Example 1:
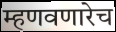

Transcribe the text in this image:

म्हणवणारेच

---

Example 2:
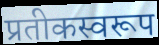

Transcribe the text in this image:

प्रतीकस्वरूप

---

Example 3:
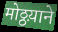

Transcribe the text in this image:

मोठ्ठय़ाने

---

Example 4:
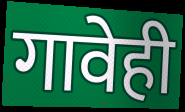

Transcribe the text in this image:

गावेही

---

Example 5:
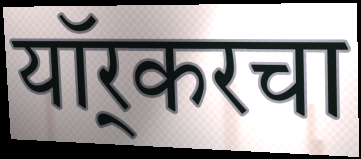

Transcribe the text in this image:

यॉर्करचा